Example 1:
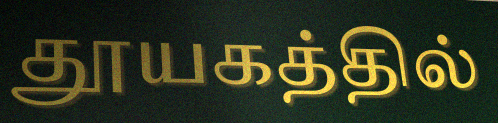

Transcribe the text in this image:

தூயகத்தில்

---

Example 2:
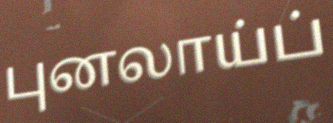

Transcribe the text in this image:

புனலாய்ப்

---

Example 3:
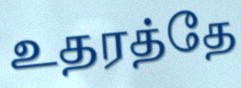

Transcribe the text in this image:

உதரத்தே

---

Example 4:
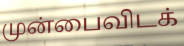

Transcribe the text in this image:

முன்பைவிடக்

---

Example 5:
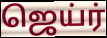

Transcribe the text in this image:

ஜெய்ர்